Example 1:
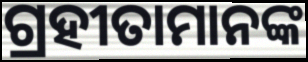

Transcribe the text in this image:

ଗ୍ରହୀତାମାନଙ୍କ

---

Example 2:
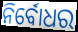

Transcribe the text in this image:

ନିର୍ବୋଧର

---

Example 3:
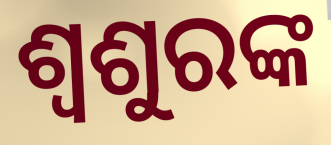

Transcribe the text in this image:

ଶ୍ୱଶୁରଙ୍କ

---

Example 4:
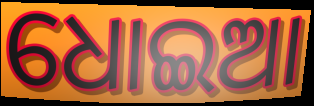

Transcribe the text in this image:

ଧୋଇଆ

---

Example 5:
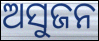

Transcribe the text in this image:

ଅସୁଜନ